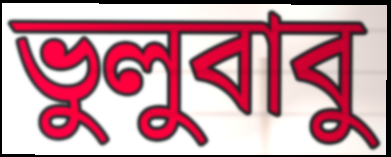
ভুলুবাবু